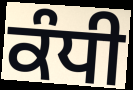
ਕੰਧੀ